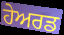
ਹੇਅਰਡ